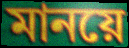
মানয়ে